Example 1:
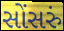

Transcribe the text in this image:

સોંસરું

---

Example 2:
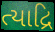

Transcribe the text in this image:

ત્યાદ્રિ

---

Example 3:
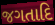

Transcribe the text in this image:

જગતાદિ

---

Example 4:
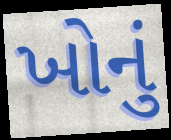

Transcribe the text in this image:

ખોનું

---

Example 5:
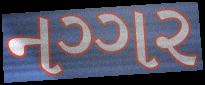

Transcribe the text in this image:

નગ્ગર